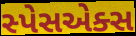
સ્પેસએક્સ